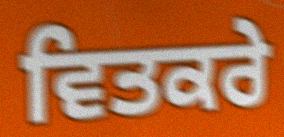
ਵਿਤਕਰੇ